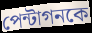
পেন্টাগনকে